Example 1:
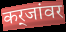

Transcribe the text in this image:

कर्जांवर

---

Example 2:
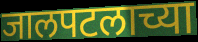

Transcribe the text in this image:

जालपटलाच्या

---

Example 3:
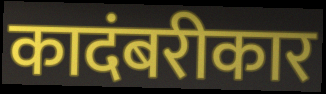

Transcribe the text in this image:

कादंबरीकार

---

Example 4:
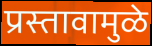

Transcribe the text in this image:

प्रस्तावामुळे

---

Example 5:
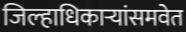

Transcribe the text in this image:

जिल्हाधिकाऱ्यांसमवेत